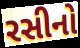
રસીનો